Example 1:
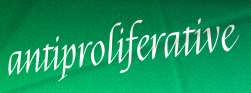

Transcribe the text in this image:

antiproliferative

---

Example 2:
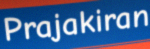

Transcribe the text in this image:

Prajakiran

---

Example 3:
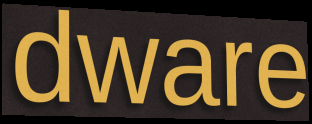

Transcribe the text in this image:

dware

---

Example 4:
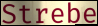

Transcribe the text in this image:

Strebe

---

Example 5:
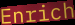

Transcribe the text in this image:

Enrich